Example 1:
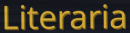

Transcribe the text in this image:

Literaria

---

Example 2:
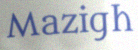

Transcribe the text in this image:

Mazigh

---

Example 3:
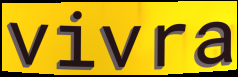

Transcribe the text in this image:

vivra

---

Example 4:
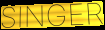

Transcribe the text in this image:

SINGER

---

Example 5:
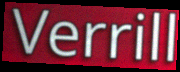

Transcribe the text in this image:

Verrill